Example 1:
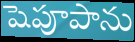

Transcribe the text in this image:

షెపూపాను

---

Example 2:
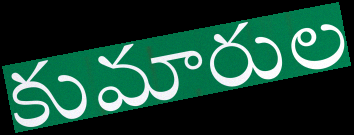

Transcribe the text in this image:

కుమారుల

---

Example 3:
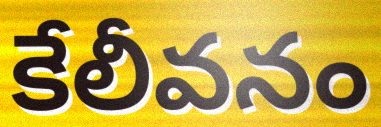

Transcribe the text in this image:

కేలీవనం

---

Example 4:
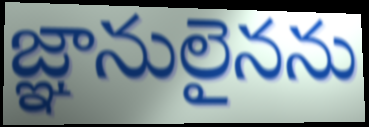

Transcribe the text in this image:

జ్ఞానులైనను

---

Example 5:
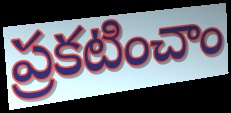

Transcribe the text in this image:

ప్రకటించాం